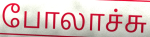
போலாச்சு